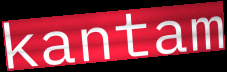
kantam